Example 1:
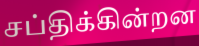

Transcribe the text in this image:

சப்திக்கின்றன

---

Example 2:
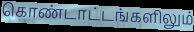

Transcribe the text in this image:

கொண்டாட்டங்களிலும்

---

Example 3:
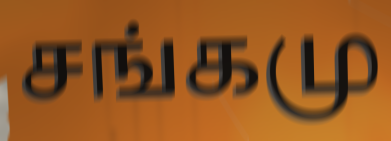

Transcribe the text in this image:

சங்கமு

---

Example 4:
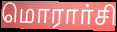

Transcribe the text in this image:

மொரார்சி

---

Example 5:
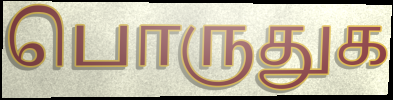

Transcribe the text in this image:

பொருதுக